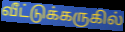
வீட்டுக்கருகில்